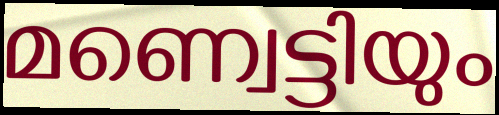
മണ്വെട്ടിയും